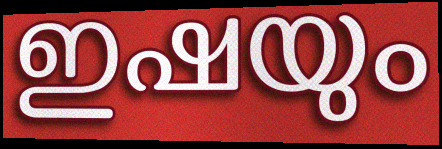
ഇഷയും